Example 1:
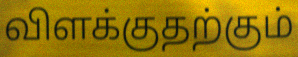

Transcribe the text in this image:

விளக்குதற்கும்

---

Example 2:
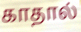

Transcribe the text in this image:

காதால்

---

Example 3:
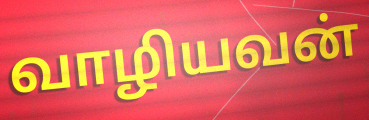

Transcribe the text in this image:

வாழியவன்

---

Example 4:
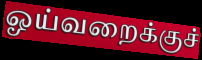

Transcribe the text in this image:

ஓய்வறைக்குச்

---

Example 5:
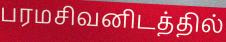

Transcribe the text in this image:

பரமசிவனிடத்தில்